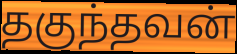
தகுந்தவன்